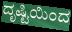
ದೃಷ್ಟಿಯಿಂದ